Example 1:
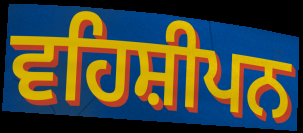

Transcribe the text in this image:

ਵਹਿਸ਼ੀਪਨ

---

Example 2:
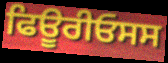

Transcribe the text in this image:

ਫਿਊਰੀਓਸਸ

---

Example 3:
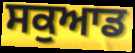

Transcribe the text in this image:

ਸਕੁਆਡ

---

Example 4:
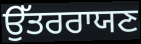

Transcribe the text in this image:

ਉੱਤਰਰਾਯਣ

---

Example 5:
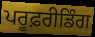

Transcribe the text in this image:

ਪਰੂਫ਼ਰੀਡਿੰਗ